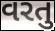
વરતુ